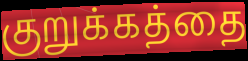
குறுக்கத்தை